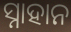
ସ୍ନାହାନ